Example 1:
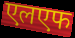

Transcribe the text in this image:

एलएफ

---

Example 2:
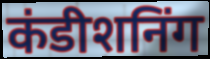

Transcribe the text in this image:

कंडीशनिंग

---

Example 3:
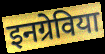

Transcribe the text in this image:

इनग्रेविया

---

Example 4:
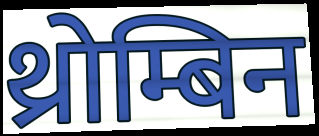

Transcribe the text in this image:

थ्रोम्बिन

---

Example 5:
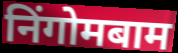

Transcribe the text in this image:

निंगोमबाम